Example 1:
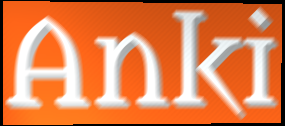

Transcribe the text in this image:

Anki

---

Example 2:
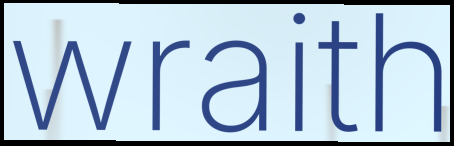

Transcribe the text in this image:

wraith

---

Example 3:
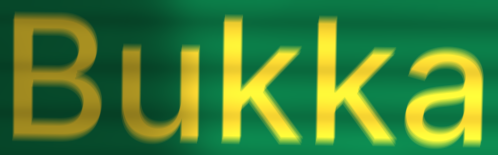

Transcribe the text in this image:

Bukka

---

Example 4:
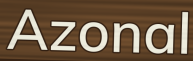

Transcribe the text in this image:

Azonal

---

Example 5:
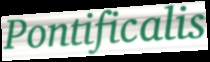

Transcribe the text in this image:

Pontificalis